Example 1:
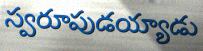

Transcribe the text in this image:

స్వరూపుడయ్యాడు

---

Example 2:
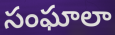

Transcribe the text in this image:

సంఘాలా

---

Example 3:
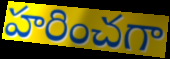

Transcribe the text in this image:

హరించగా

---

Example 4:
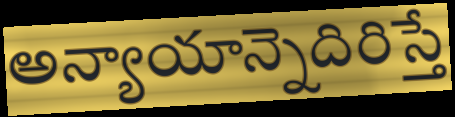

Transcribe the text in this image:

అన్యాయాన్నెదిరిస్తే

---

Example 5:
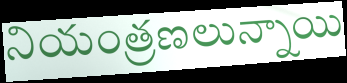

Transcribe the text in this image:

నియంత్రణలున్నాయి